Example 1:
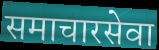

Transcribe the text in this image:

समाचारसेवा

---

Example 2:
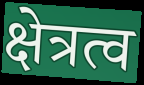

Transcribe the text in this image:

क्षेत्रत्व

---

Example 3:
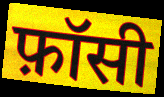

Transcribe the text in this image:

फ़ॉसी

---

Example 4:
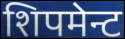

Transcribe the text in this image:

शिपमेन्ट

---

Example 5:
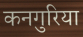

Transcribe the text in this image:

कनगुरिया